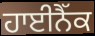
ਹਾਈਨੈੱਕ